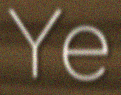
Ye